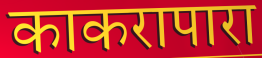
काकरापारा